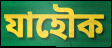
যাহৌক